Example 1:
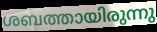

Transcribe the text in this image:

ശബത്തായിരുന്നു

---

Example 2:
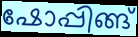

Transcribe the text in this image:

ഷോപ്പിങ്ങ്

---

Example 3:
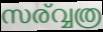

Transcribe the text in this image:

സര്വ്വത്ര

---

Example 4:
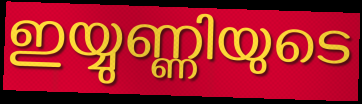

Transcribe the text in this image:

ഇയ്യുണ്ണിയുടെ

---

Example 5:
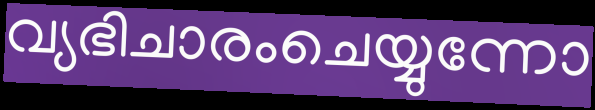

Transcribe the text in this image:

വ്യഭിചാരംചെയ്യുന്നോ